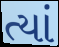
ત્‍યાં